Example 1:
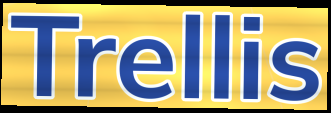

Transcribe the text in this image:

Trellis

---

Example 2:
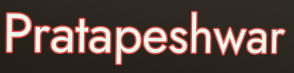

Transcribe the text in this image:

Pratapeshwar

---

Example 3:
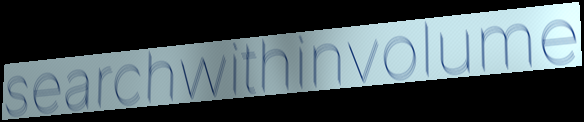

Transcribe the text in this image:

searchwithinvolume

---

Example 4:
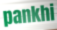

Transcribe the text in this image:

pankhi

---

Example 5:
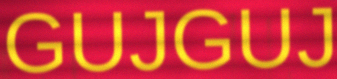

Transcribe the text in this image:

GUJGUJ